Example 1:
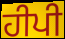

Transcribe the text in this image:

ਹੀਪੀ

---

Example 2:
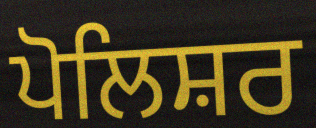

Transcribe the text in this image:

ਪੋਲਿਸ਼ਰ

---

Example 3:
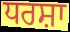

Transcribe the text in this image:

ਧਰਸ਼ਾ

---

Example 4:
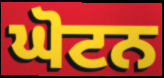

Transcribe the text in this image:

ਘੋਟਨ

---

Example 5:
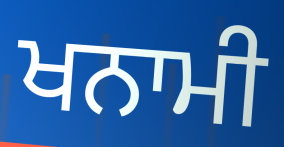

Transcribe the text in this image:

ਖਨਾਮੀ